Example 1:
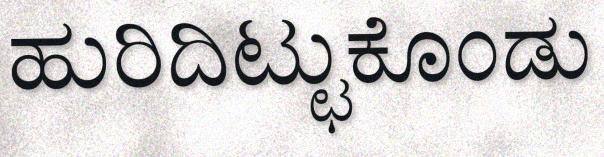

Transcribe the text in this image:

ಹುರಿದಿಟ್ಟುಕೊಂಡು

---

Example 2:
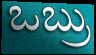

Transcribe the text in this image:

ಒಬ್ರು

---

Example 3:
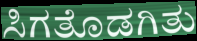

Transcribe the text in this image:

ಸಿಗತೊಡಗಿತು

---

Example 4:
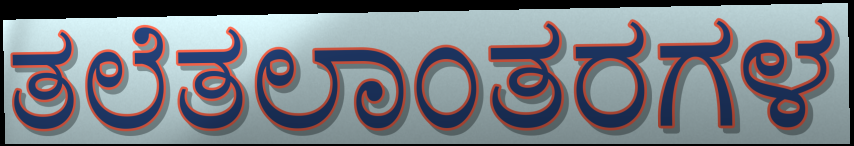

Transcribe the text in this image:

ತಲೆತಲಾಂತರಗಳ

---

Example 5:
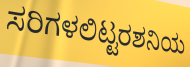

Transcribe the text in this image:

ಸರಿಗಳಲಿಟ್ಟರಶನಿಯ